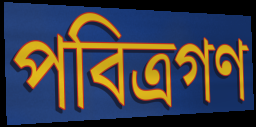
পবিত্রগণ